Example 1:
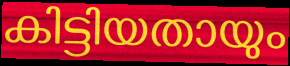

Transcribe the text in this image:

കിട്ടിയതായും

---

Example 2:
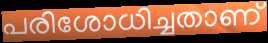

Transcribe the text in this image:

പരിശോധിച്ചതാണ്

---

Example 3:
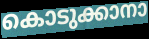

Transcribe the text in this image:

കൊടുക്കാനാ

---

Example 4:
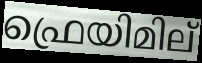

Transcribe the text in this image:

ഫ്രെയിമില്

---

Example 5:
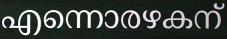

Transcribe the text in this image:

എന്നൊരഴകന്